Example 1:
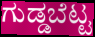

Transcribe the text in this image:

ಗುಡ್ಡಬೆಟ್ಟ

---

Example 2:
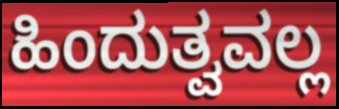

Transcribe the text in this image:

ಹಿಂದುತ್ವವಲ್ಲ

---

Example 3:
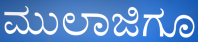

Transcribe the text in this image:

ಮುಲಾಜಿಗೂ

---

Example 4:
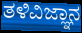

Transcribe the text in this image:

ತಳಿವಿಜ್ಞಾನ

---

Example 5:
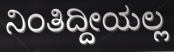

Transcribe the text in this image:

ನಿಂತಿದ್ದೀಯಲ್ಲ